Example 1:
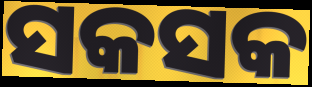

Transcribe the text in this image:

ସକସକ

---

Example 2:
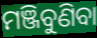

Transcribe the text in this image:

ମଞ୍ଜିବୁଣିବା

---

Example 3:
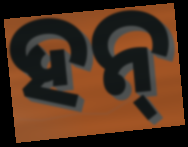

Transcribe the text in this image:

ହନ୍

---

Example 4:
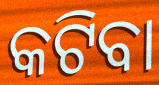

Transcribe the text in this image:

କଟିବା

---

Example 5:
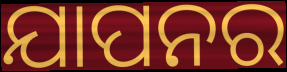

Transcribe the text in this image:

ଯାପନର